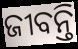
ଜୀବନ୍ତି